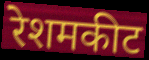
रेशमकीट